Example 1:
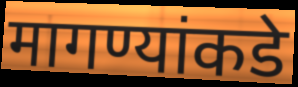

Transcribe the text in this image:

मागण्यांकडे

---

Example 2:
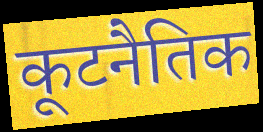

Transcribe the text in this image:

कूटनैतिक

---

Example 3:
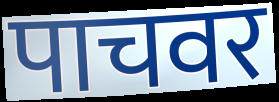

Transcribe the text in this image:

पाचवर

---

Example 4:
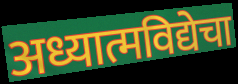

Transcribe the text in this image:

अध्यात्मविद्येचा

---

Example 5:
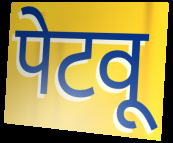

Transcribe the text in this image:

पेटवू